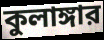
কুলাঙ্গার